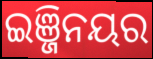
ଇଞ୍ଜିନୟର